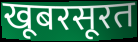
खूबरसूरत